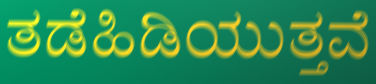
ತಡೆಹಿಡಿಯುತ್ತವೆ